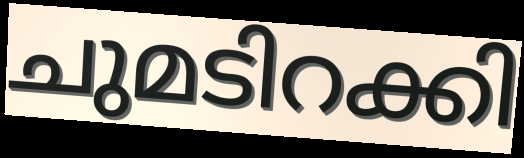
ചുമടിറക്കി